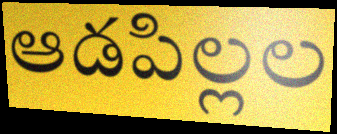
ఆడపిల్లల